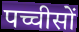
पच्चीसों